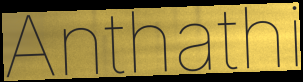
Anthathi